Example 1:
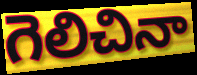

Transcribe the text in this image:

గెలిచినా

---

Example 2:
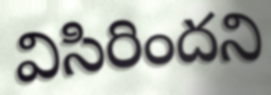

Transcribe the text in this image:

విసిరిందని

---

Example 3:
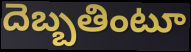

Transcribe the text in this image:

దెబ్బతింటూ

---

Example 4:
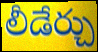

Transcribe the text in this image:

లీడేర్చు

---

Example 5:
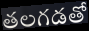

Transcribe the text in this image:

తలగడతో